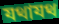
যথাযথ